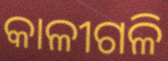
କାଳୀଗଳି